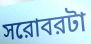
সরোবরটা